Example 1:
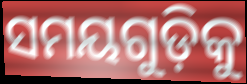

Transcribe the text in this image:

ସମୟଗୁଡ଼ିକୁ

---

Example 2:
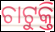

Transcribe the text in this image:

ଚାଟୁକ୍ତି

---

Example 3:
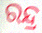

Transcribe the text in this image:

ରନ୍ଦ୍ର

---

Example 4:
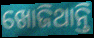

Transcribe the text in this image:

ଖୋଜିଥାନ୍ତି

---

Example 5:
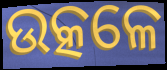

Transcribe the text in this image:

ଉତ୍କଳେ